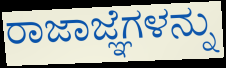
ರಾಜಾಜ್ಞೆಗಳನ್ನು